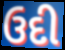
ઉદી